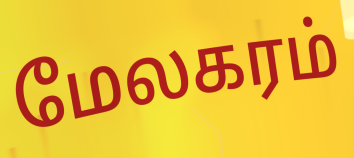
மேலகரம்